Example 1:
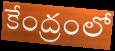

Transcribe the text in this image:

కేంద్రంలో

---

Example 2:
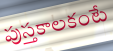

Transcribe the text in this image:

పుస్తకాలకంటే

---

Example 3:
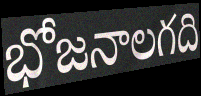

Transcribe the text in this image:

భోజనాలగది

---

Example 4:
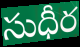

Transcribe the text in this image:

సుధీర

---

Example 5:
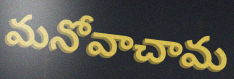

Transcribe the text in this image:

మనోవాచామ